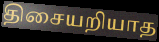
திசையறியாத